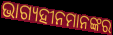
ଭାଗ୍ୟହୀନମାନଙ୍କର